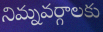
నిమ్నవర్గాలకు